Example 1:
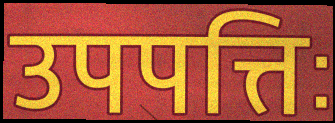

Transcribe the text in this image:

उपपत्तिः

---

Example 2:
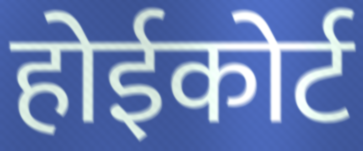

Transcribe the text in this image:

होईकोर्ट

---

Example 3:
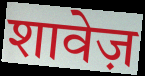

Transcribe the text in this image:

शावेज़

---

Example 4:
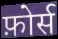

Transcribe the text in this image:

फ़ोर्स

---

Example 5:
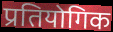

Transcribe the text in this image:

प्रतियोगिक